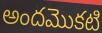
అందమొకటి